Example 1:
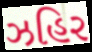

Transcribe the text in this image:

ઝહિર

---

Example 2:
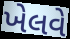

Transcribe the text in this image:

ખેલવે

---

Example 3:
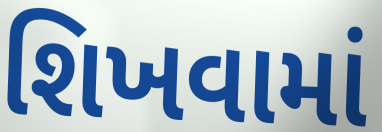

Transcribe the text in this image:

શિખવામાં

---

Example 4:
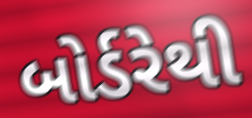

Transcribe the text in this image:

બોર્ડરેથી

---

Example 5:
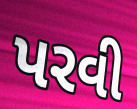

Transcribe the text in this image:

પરવી